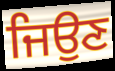
ਜਿਉਣ